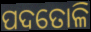
ପଦତୋଳି